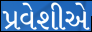
પ્રવેશીએ